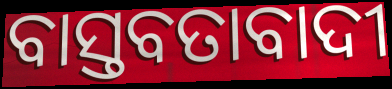
ବାସ୍ତବତାବାଦୀ